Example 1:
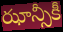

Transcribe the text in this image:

ఝాన్సీకీ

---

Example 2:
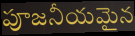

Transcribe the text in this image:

పూజనీయమైన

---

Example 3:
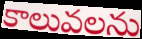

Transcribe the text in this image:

కాలువలను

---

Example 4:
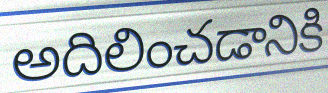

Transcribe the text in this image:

అదిలించడానికి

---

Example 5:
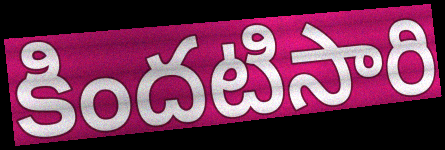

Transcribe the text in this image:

కిందటిసారి